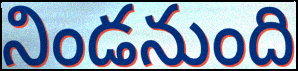
నిండనుంది